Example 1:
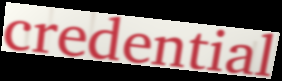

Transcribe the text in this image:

credential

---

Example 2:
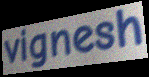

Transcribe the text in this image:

vignesh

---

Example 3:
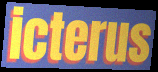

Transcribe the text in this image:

icterus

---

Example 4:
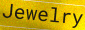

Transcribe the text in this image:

Jewelry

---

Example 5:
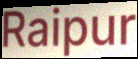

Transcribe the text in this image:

Raipur